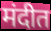
मंदीत